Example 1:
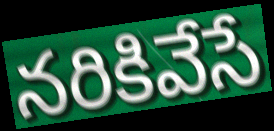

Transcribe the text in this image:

నరికివేసే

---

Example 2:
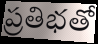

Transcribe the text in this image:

ప్రతిభతో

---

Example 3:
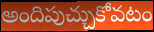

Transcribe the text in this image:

అందిపుచ్చుకోవటం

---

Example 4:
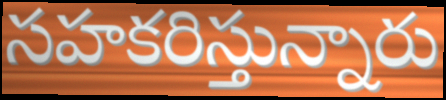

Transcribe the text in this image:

సహకరిస్తున్నారు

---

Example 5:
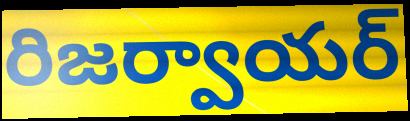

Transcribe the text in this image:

రిజర్వాయర్